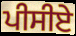
ਪੀਸੀਏ